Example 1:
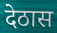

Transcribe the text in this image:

देठास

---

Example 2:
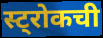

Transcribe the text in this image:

स्ट्रोकची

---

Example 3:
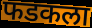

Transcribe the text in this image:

फडकला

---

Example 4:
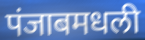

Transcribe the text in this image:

पंजाबमधली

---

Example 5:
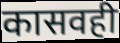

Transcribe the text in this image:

कासवही